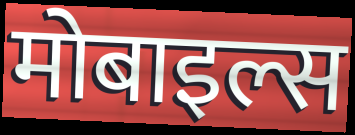
मोबाइल्स